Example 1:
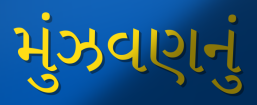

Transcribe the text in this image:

મુંઝવણનું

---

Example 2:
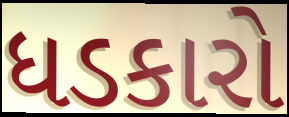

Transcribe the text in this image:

ધડકારો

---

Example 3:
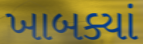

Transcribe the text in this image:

ખાબક્યાં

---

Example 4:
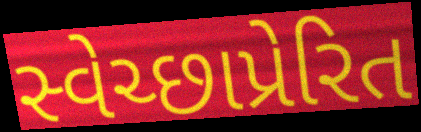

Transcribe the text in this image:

સ્વેચ્છાપ્રેરિત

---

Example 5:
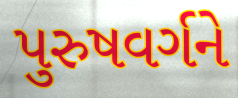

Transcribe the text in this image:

પુરુષવર્ગને